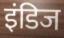
इंडिज